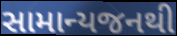
સામાન્યજનથી